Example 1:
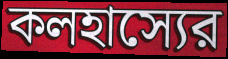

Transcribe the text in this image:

কলহাস্যের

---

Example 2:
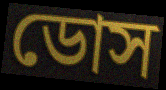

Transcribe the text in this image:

ডোস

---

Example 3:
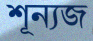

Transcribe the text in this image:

শূন্যজ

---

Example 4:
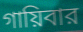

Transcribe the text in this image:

গায়িবার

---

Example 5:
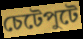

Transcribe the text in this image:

চেটেপুটে